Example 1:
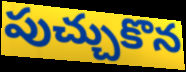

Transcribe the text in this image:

పుచ్చుకొన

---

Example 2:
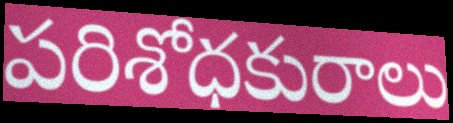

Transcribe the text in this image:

పరిశోధకురాలు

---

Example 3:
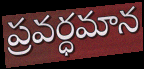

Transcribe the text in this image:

ప్రవర్ధమాన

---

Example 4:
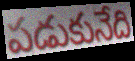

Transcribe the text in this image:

పడుకునేది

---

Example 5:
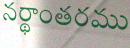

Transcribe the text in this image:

నర్థాంతరము